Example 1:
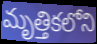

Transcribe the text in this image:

మృత్తికలోని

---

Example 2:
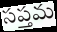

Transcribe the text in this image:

సప్తమ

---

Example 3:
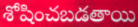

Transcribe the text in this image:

శోషించబడతాయి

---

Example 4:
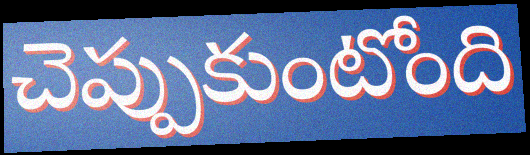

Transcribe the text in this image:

చెప్పుకుంటోంది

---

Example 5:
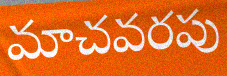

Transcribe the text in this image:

మాచవరపు